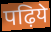
पढ़िये